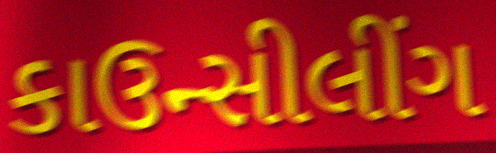
કાઉન્સીલીંગ